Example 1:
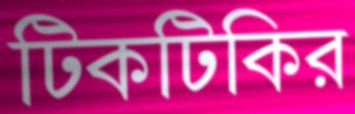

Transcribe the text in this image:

টিকটিকির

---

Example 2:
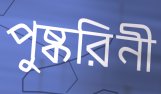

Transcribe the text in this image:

পুষ্করিনী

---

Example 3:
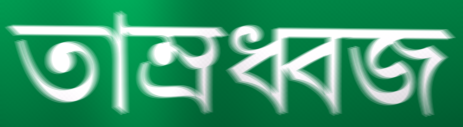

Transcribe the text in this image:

তাম্রধ্বজ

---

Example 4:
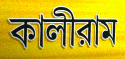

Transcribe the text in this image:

কালীরাম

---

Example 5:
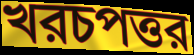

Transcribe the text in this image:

খরচপত্তর